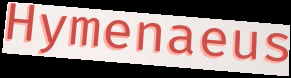
Hymenaeus